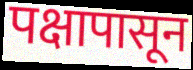
पक्षापासून